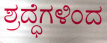
ಶ್ರದ್ಧೆಗಳಿಂದ